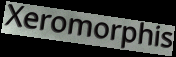
Xeromorphis